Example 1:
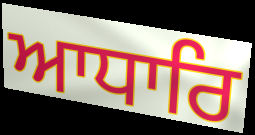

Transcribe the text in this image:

ਆਧਾਰਿ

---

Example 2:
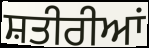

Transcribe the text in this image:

ਸ਼ਤੀਰੀਆਂ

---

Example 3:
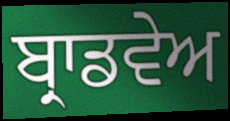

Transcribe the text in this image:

ਬ੍ਰਾਡਵੇਅ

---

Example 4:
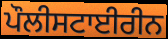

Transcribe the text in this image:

ਪੌਲੀਸਟਾਈਰੀਨ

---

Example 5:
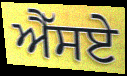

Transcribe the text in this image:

ਐੱਸਏ